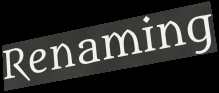
Renaming